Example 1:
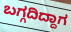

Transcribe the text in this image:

ಬಗ್ಗದಿದ್ದಾಗ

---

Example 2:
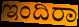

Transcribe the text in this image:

ಇಂದಿರಾ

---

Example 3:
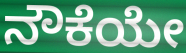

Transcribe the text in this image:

ನೌಕೆಯೇ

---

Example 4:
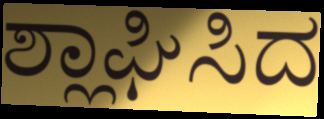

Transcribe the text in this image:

ಶ್ಲಾಘಿಸಿದ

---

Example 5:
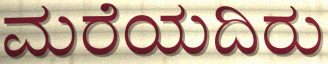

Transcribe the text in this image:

ಮರೆಯದಿರು